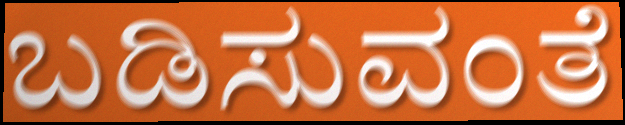
ಬಡಿಸುವಂತೆ